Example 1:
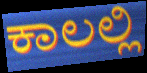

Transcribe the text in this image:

ಕಾಲಲ್ಲಿ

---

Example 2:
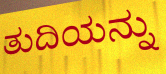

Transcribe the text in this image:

ತುದಿಯನ್ನು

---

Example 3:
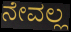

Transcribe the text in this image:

ನೇವಲ್ಲ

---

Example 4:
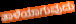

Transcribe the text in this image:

ತಾಳೆಯಾಗುವುದು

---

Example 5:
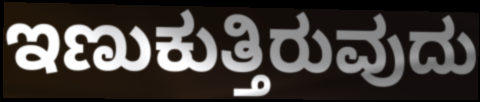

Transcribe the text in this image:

ಇಣುಕುತ್ತಿರುವುದು